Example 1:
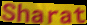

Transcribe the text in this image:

Sharat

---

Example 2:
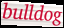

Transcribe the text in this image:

bulldog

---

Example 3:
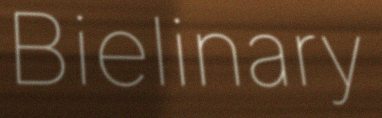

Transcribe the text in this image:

Bielinary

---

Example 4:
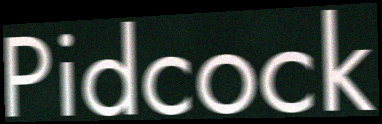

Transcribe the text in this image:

Pidcock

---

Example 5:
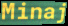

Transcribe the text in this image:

Minaj